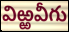
విఱ్ఱవీగు